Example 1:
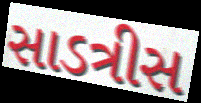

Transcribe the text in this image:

સાડત્રીસ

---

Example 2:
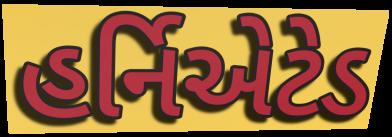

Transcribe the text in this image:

હર્નિએટેડ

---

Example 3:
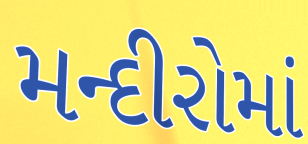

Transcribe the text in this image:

મન્દીરોમાં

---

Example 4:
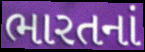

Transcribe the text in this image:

ભારતનાં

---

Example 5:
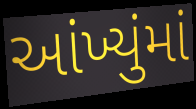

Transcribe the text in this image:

આંખ્યુંમાં